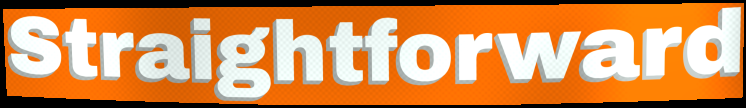
Straightforward